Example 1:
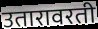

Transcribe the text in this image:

उतारावरती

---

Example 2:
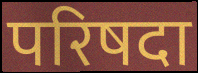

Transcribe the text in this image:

परिषदा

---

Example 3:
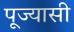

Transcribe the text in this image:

पूज्यासी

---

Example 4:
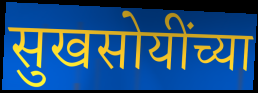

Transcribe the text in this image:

सुखसोयींच्या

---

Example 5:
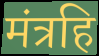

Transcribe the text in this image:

मंत्रहि